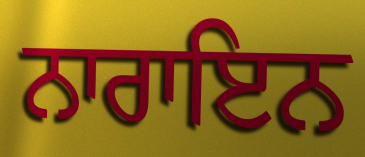
ਨਾਰਾਇਨ